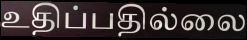
உதிப்பதில்லை